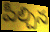
పీల్చిన